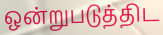
ஒன்றுபடுத்திட